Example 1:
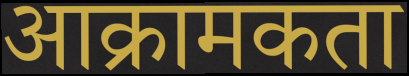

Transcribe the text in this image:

आक्रामकता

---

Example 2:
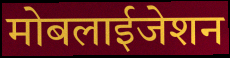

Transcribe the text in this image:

मोबलाईजेशन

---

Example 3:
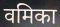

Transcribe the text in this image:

वमिका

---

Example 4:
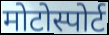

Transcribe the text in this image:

मोटोस्पोर्ट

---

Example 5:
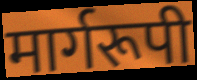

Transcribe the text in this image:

मार्गरूपी